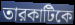
তারকাটিকে